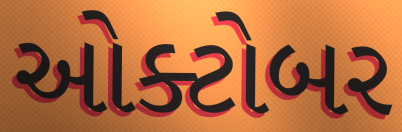
ઓક્ટોબર